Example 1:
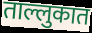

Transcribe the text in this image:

ताल्लुकात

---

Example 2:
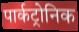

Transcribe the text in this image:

पार्कट्रोनिक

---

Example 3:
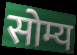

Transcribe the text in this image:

सोम्य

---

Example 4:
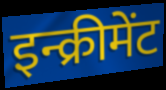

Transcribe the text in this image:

इन्क्रीमेंट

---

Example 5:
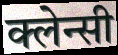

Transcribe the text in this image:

क्लेन्सी